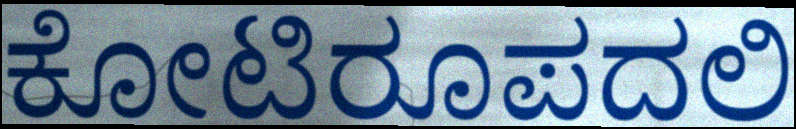
ಕೋಟಿರೂಪದಲಿ